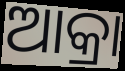
ଆକ୍ରା